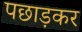
पछाड़कर